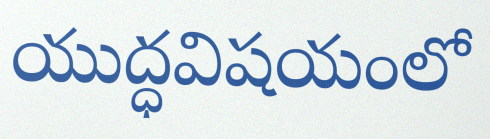
యుద్ధవిషయంలో